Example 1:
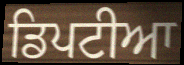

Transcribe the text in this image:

ਡਿਪਟੀਆ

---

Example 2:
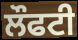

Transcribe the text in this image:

ਲੌਫਟੀ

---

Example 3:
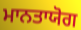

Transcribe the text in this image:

ਮਾਨਤਾਯੋਗ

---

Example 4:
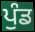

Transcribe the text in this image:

ਪੁੰਡ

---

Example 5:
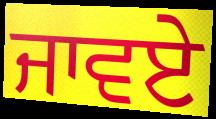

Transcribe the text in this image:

ਜਾਵਏ